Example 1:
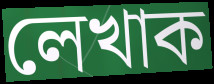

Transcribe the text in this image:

লেখাক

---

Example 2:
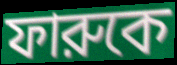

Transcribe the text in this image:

ফাৰুকে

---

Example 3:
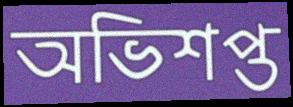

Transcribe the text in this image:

অভিশপ্ত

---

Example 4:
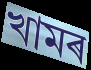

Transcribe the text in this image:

খামৰ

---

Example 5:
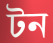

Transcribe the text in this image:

টন